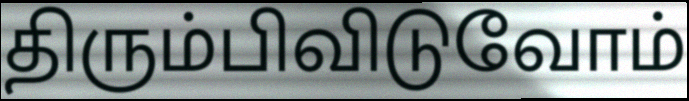
திரும்பிவிடுவோம்